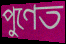
পুণেত